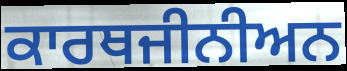
ਕਾਰਥਜੀਨੀਅਨ